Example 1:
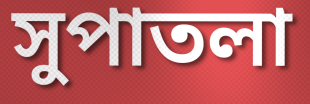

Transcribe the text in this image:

সুপাতলা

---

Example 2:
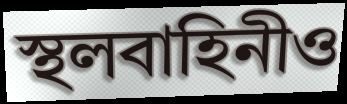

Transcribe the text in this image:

স্থলবাহিনীও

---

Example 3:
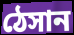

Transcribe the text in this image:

ঠেসান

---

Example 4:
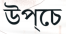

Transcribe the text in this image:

উপ্চে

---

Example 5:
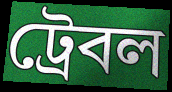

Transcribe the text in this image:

ট্রেবল